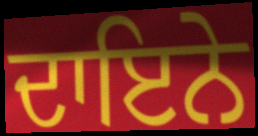
ਦਾਇਨੇ